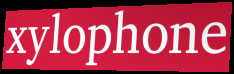
xylophone